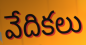
వేదికలు